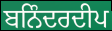
ਬਨਿੰਦਰਦੀਪ